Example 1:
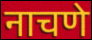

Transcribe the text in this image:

नाचणे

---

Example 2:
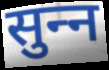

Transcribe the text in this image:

सुन्‍न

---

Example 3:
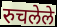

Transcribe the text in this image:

रुचलेले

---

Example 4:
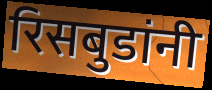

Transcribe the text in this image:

रिसबुडांनी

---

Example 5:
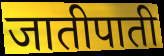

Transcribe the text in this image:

जातीपाती